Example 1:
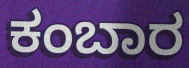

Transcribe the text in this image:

ಕಂಬಾರ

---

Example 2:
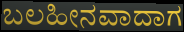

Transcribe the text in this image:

ಬಲಹೀನವಾದಾಗ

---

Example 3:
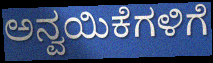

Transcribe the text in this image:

ಅನ್ವಯಿಕೆಗಳಿಗೆ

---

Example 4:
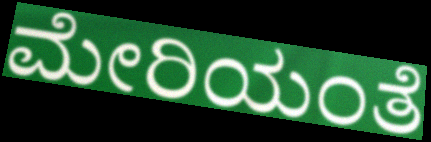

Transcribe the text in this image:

ಮೇರಿಯಂತೆ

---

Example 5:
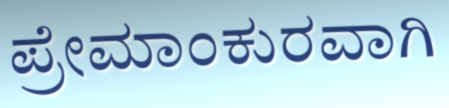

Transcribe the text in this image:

ಪ್ರೇಮಾಂಕುರವಾಗಿ